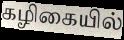
கழிகையில்